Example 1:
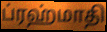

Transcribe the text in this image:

ப்ரஹ்மாதி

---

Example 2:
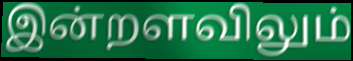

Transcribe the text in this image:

இன்றளவிலும்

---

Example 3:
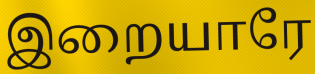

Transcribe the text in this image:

இறையாரே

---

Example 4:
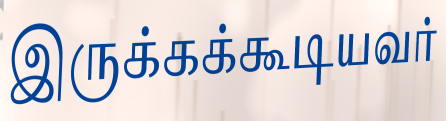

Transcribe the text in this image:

இருக்கக்கூடியவர்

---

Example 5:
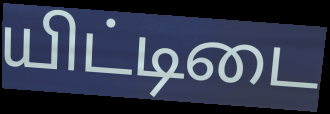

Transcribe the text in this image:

யிட்டிடை